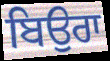
ਬਿਉਰਾ